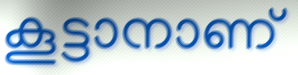
കൂട്ടാനാണ്